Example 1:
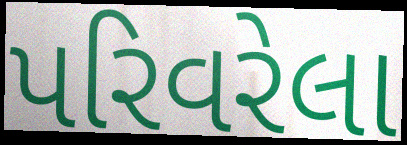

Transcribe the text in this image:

પરિવરેલા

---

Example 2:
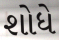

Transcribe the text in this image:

શોધે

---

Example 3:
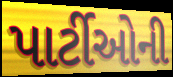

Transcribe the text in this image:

પાર્ટીઓની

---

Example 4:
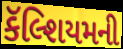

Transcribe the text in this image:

કૅલ્શિયમની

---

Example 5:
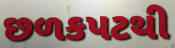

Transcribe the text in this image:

છળકપટથી